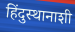
हिंदुस्थानाशी